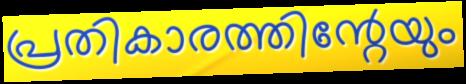
പ്രതികാരത്തിന്റേയും